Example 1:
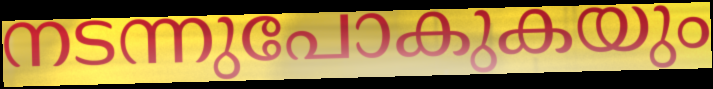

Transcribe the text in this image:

നടന്നുപോകുകയും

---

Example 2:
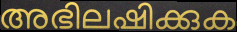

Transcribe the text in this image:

അഭിലഷിക്കുക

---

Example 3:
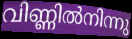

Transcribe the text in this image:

വിണ്ണിൽനിന്നു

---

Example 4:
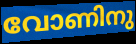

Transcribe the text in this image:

വോണിനു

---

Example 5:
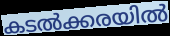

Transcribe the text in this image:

കടൽക്കരയിൽ